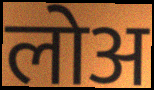
लोअ